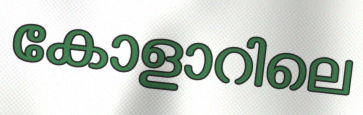
കോളാറിലെ